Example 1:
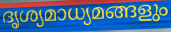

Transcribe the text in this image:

ദൃശ്യമാധ്യമങ്ങളും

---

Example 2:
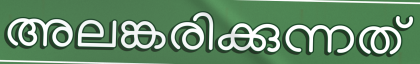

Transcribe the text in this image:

അലങ്കരിക്കുന്നത്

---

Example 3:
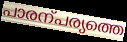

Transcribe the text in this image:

പാരന്പര്യത്തെ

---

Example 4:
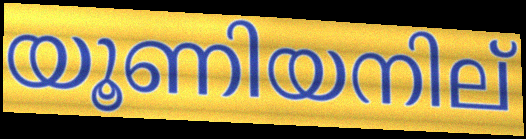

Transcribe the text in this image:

യൂണിയനില്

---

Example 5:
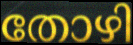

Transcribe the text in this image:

തോഴി